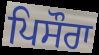
ਪਿਸੌਰਾ